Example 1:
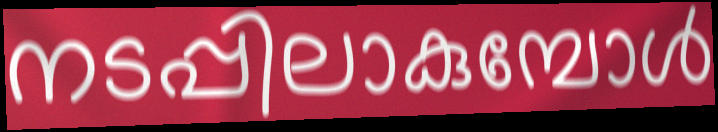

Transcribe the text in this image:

നടപ്പിലാകുമ്പോൾ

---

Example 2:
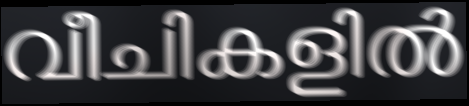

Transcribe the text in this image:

വീചികളിൽ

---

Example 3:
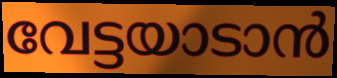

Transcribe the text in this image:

വേട്ടയാടാൻ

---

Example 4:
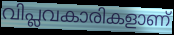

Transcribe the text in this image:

വിപ്ലവകാരികളാണ്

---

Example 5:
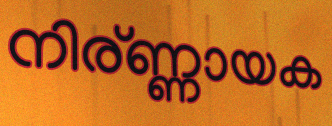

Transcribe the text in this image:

നിര്ണ്ണായക